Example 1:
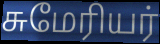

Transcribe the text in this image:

சுமேரியர்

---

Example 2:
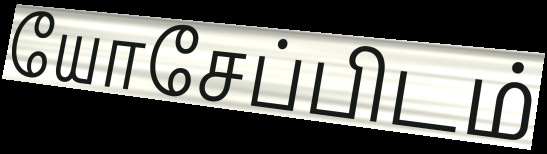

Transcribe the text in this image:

யோசேப்பிடம்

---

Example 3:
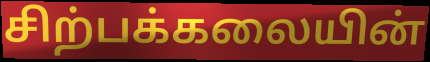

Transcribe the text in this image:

சிற்பக்கலையின்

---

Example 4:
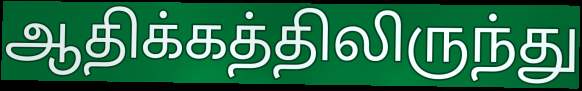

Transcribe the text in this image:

ஆதிக்கத்திலிருந்து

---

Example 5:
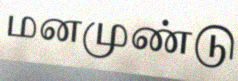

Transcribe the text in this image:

மனமுண்டு